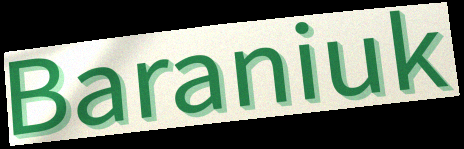
Baraniuk